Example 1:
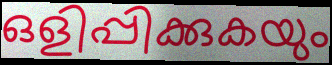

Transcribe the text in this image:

ഒളിപ്പിക്കുകയും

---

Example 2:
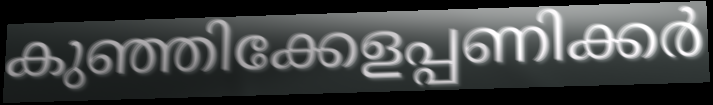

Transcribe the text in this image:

കുഞ്ഞിക്കേളപ്പണിക്കർ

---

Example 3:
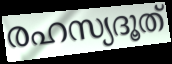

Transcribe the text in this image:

രഹസ്യദൂത്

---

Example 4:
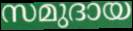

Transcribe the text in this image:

സമുദായ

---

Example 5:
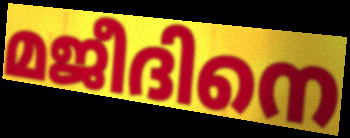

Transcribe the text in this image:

മജീദിനെ